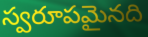
స్వరూపమైనది